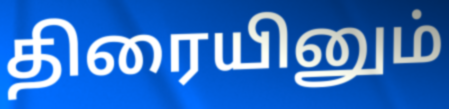
திரையினும்